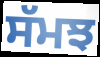
ਸੱਮਝ